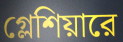
গ্লেশিয়ারে